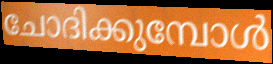
ചോദിക്കുമ്പോൾ